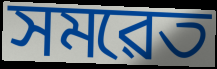
সমৱেত